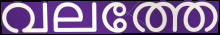
വലത്തേ